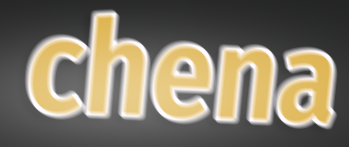
chena